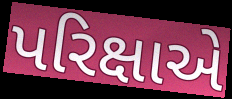
પરિક્ષાએ